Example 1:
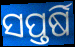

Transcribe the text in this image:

ସପ୍ତର୍ଷି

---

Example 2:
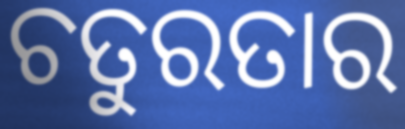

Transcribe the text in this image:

ଚତୁରତାର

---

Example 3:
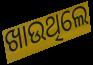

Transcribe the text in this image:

ଖାଉଥିଲେ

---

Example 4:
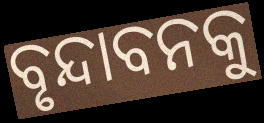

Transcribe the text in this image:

ବୃନ୍ଦାବନକୁ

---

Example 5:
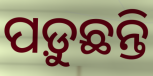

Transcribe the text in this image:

ପଡ଼ୁଛନ୍ତି